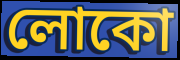
লোকো